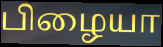
பிழையா